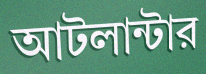
আটলান্টার